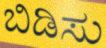
ಬಿಡಿಸು